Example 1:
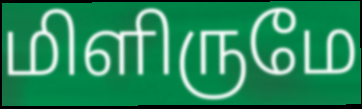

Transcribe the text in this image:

மிளிருமே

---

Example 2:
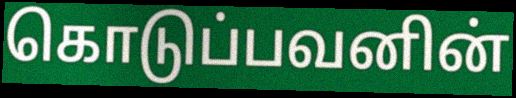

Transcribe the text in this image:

கொடுப்பவனின்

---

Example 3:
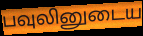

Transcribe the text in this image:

பவுலினுடைய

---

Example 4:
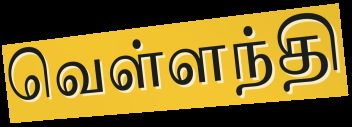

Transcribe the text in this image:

வெள்ளந்தி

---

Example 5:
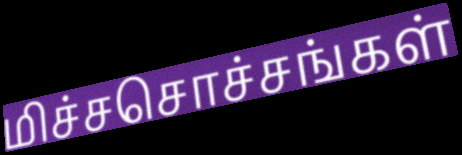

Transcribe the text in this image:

மிச்சசொச்சங்கள்